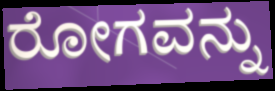
ರೋಗವನ್ನು